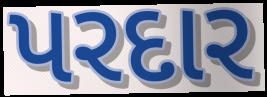
પરદાર